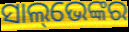
ସାଲ୍‌ଭେଙ୍କର